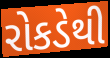
રોકડેથી